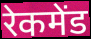
रेकमेंड